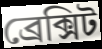
ব্রেক্সিট